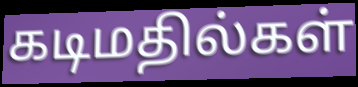
கடிமதில்கள்